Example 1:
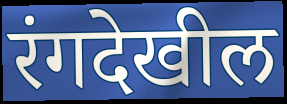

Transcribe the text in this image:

रंगदेखील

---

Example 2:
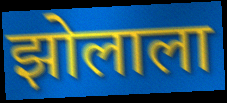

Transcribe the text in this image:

झोलाला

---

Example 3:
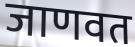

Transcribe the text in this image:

जाणवत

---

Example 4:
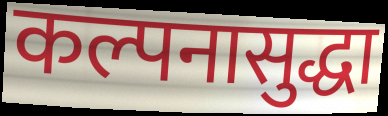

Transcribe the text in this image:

कल्पनासुद्धा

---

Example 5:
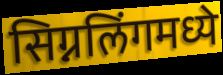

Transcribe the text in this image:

सिग्नलिंगमध्ये